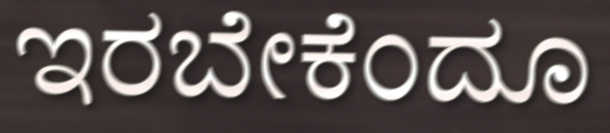
ಇರಬೇಕೆಂದೂ